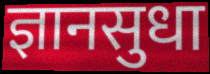
ज्ञानसुधा